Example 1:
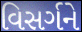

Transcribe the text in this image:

વિસર્ગને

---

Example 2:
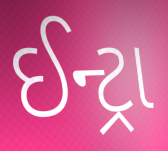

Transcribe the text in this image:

ઈન્ટ્રા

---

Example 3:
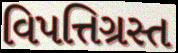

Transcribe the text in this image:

વિપત્તિગ્રસ્ત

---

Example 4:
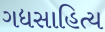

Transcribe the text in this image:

ગદ્યસાહિત્ય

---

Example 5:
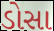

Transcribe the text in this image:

ડોસા